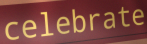
celebrate